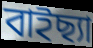
বাইছ্যা